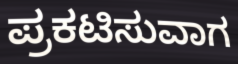
ಪ್ರಕಟಿಸುವಾಗ